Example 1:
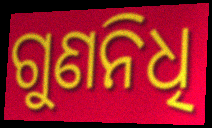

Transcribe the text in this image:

ଗୁଣନିଧି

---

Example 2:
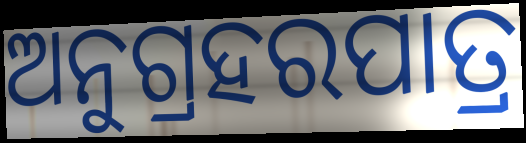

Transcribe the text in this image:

ଅନୁଗ୍ରହରପାତ୍ର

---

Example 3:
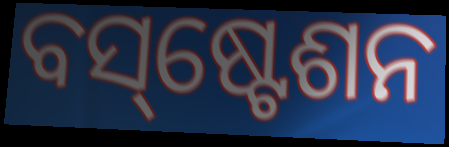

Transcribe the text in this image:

ବସ୍‌ଷ୍ଟେଶନ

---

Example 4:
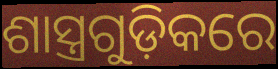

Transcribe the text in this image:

ଶାସ୍ତ୍ରଗୁଡ଼ିକରେ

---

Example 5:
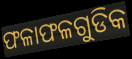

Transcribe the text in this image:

ଫଳାଫଳଗୁଡିକ